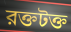
রক্তটক্ত